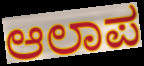
ಆಲಾಪ